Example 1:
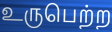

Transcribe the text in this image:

உருபெற்ற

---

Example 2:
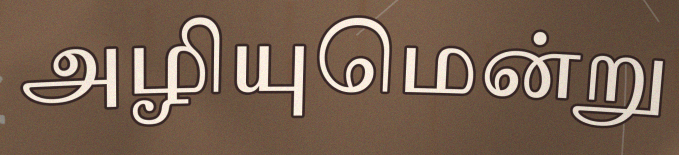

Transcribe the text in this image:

அழியுமென்று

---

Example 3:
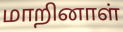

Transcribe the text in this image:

மாறினாள்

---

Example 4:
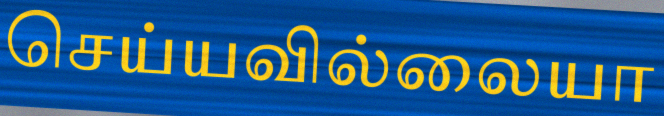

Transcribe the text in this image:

செய்யவில்லையா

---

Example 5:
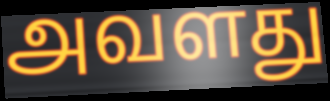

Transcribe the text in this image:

அவளது